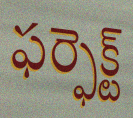
ఫర్ఫెక్ట్